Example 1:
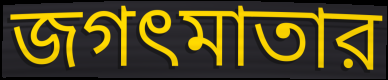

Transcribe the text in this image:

জগৎমাতার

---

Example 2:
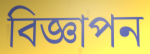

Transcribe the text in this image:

বিজ্ঞাপন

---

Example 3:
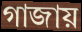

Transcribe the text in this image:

গাজায়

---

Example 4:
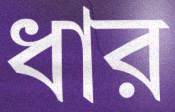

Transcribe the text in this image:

ধার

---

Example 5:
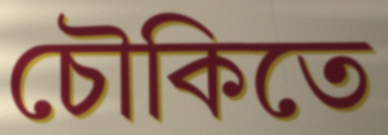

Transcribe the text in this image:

চৌকিতে